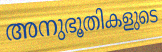
അനുഭൂതികളുടെ